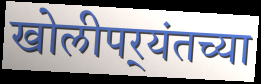
खोलीपर्यंतच्या